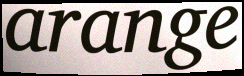
arange